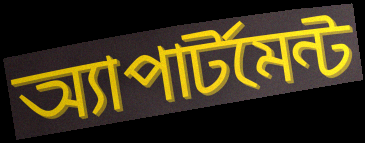
অ্যাপার্টমেন্ট